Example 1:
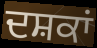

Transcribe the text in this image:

ਦਸ਼ਕਾਂ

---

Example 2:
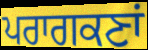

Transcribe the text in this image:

ਪਰਾਗਕਣਾਂ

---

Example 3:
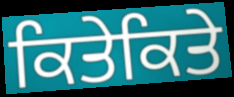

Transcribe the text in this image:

ਕਿਤੇਕਿਤੇ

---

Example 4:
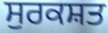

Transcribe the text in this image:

ਸੁਰਕਸ਼ਤ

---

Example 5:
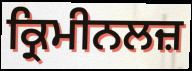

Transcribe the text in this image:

ਕ੍ਰਿਮੀਨਲਜ਼